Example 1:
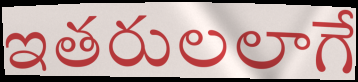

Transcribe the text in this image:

ఇతరులలాగే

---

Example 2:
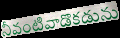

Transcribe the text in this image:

నీవంటివాడొకడును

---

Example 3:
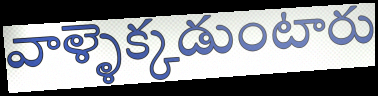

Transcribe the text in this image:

వాళ్ళెక్కడుంటారు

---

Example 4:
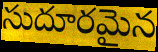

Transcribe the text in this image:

సుదూరమైన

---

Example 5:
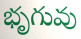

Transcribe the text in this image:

భృగువు